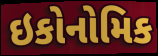
ઇકોનોમિક